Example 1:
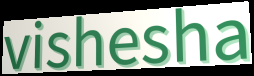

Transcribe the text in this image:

vishesha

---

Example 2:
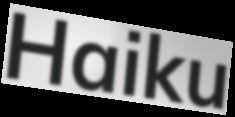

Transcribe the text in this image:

Haiku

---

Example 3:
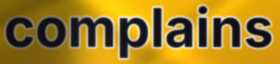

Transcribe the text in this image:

complains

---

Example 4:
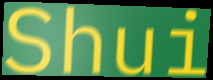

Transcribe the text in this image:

Shui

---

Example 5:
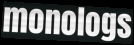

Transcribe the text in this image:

monologs